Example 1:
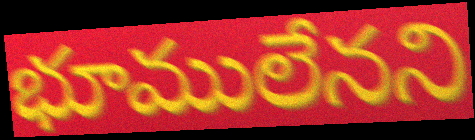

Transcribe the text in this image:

భూములేనని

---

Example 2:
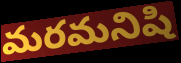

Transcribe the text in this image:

మరమనిషి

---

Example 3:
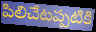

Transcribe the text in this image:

పిలిచేటప్పటికి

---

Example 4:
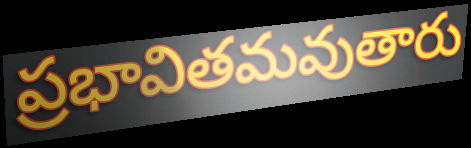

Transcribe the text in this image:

ప్రభావితమవుతారు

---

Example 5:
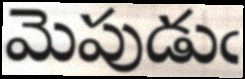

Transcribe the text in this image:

మెపుడుఁ